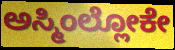
ಅಸ್ಮಿಂಲ್ಲೋಕೇ